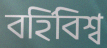
বর্হিবিশ্ব